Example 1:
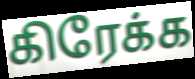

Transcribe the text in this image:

கிரேக்க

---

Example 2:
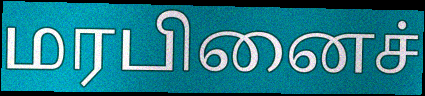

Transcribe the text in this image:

மரபினைச்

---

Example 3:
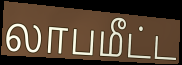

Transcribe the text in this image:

லாபமீட்ட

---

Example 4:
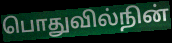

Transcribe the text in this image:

பொதுவில்நின்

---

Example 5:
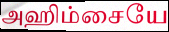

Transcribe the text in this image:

அஹிம்சையே